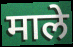
माले